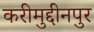
करीमुद्दीनपुर